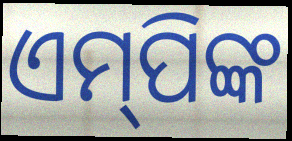
ଏମ୍‌ପିଙ୍କ